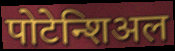
पोटेन्शिअल